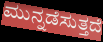
ಮುನ್ನಡೆಸುತ್ತದೆ